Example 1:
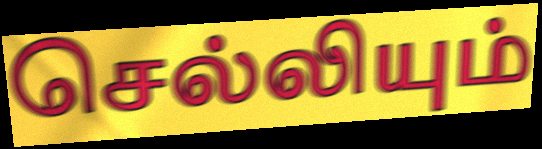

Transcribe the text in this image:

செல்லியும்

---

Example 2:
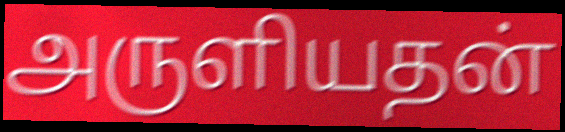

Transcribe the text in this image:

அருளியதன்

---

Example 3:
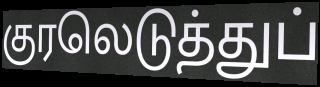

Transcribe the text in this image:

குரலெடுத்துப்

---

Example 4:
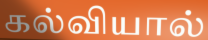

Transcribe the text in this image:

கல்வியால்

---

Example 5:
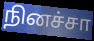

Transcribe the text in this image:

நினச்சா